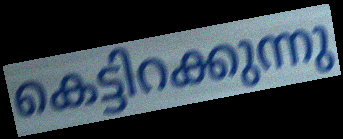
കെട്ടിറക്കുന്നു